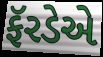
ફૅરડેએ